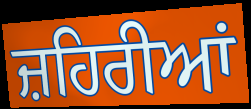
ਜ਼ਹਿਰੀਆਂ